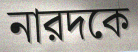
নারদকে